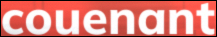
couenant